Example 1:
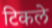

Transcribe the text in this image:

टिकले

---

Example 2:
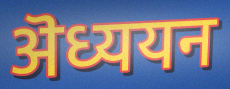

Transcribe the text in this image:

ऄध्ययन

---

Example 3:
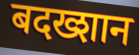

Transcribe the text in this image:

बदख्शान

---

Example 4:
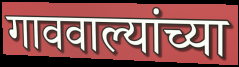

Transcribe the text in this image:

गाववाल्यांच्या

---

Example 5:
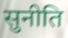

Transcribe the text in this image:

सुनीति